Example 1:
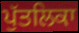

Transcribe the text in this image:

ਪੁੱਤਲਿਕਾ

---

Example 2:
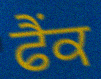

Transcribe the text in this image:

ਫੈਂਕ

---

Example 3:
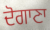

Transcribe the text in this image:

ਦੋਗਾਣਾ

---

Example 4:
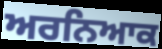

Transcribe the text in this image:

ਅਰਨਿਆਕ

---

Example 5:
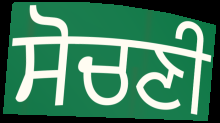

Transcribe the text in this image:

ਸੋਚਣੀ